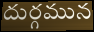
దుర్గమున